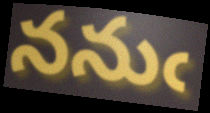
ననుఁ